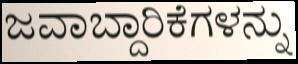
ಜವಾಬ್ದಾರಿಕೆಗಳನ್ನು